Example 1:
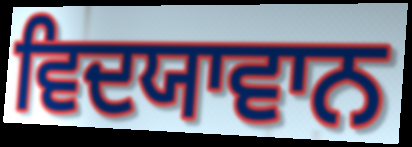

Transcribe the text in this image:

ਵਿਦਯਾਵਾਨ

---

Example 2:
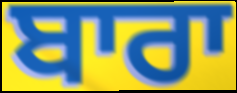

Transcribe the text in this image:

ਬਾਰਾ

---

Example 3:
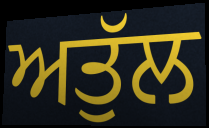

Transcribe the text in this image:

ਅਤੁੱਲ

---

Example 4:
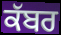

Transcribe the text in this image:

ਕੱਬਰ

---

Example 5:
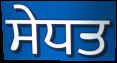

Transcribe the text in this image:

ਸੇਧਤ